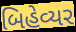
બિહેવ્યર